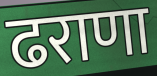
ढराणा